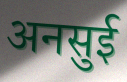
अनसुई